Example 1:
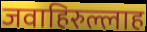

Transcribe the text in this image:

जवाहिरुल्लाह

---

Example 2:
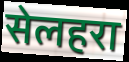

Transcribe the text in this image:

सेलहरा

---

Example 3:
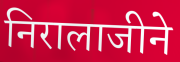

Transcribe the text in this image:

निरालाजीने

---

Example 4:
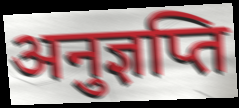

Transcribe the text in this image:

अनुज्ञप्ति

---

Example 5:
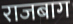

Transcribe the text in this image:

राजबाग